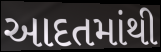
આદતમાંથી